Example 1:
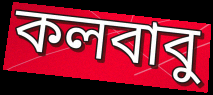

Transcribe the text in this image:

কলবাবু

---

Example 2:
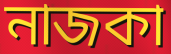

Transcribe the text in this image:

নাজকা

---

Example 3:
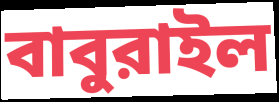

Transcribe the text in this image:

বাবুরাইল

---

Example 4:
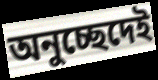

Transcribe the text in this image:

অনুচ্ছেদেই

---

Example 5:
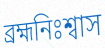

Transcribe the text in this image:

ব্রহ্মনিঃশ্বাস